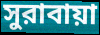
সুরাবায়া